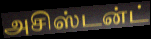
அசிஸ்டன்ட்